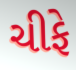
ચીફે